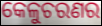
କେଳୁଚରଣର